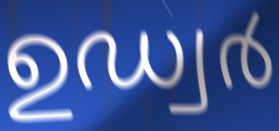
ഉഡ്വർ